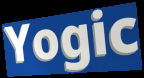
Yogic